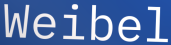
Weibel